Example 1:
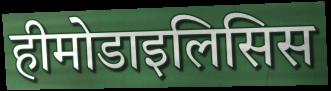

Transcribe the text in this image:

हीमोडाइलिसिस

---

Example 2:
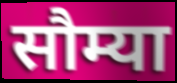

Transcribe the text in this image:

सौम्या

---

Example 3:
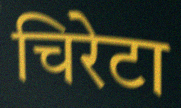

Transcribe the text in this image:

चिरेटा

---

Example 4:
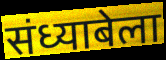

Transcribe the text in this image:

संध्याबेला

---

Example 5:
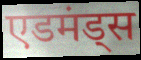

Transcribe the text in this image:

एडमंड्स